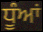
ਧੂੰਆਂ